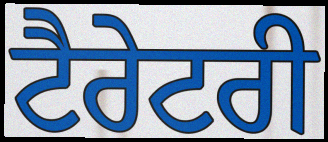
ਟੈਰੇਟਰੀ